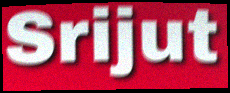
Srijut